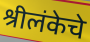
श्रीलंकेचे